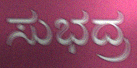
ಸುಭದ್ರ